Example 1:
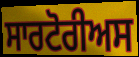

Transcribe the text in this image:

ਸਾਰਟੋਰੀਅਸ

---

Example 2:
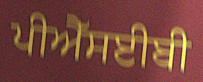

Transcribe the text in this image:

ਪੀਐੱਸਈਬੀ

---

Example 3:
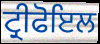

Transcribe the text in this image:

ਟ੍ਰੀਫੋਇਲ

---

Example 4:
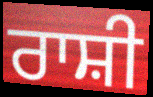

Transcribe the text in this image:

ਰਾਸ਼ੀ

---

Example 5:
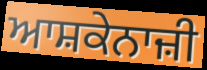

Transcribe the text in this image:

ਆਸ਼ਕੇਨਾਜ਼ੀ